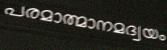
പരമാത്മാനമദ്വയം